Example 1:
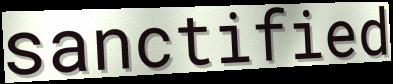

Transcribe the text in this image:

sanctified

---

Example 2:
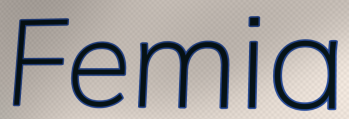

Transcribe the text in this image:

Femia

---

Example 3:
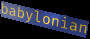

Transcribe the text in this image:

babylonian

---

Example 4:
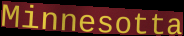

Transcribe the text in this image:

Minnesotta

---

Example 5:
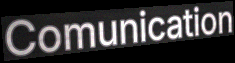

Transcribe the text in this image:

Comunication